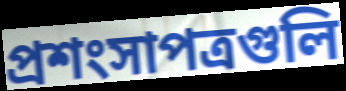
প্রশংসাপত্রগুলি